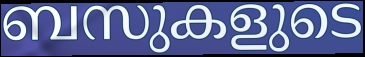
ബസുകളുടെ